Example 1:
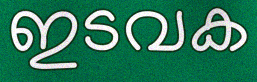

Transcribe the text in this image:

ഇടവക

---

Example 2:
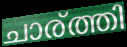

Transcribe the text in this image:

ചാര്ത്തി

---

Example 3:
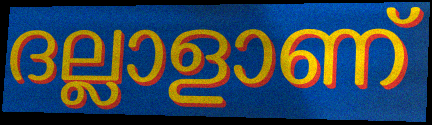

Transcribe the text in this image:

ദല്ലാളാണ്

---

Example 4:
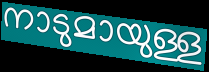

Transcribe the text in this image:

നാടുമായുള്ള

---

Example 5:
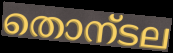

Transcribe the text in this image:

തൊന്ടല